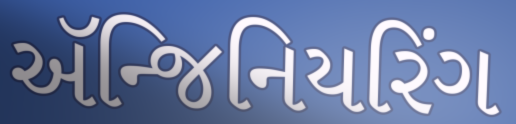
ઍન્જિનિયરિંગ